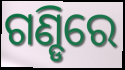
ଗଣ୍ଡିରେ